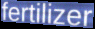
fertilizer